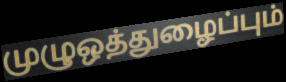
முழுஒத்துழைப்பும்